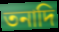
তনাদি